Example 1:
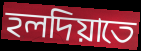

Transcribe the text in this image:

হলদিয়াতে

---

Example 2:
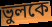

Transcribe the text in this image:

ভুলকে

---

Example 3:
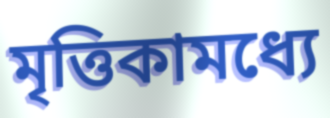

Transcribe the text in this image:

মৃত্তিকামধ্যে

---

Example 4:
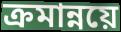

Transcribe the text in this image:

ক্রমান্নয়ে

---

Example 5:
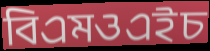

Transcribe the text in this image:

বিএমওএইচ